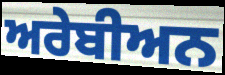
ਅਰੇਬੀਅਨ